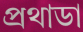
প্রথাডা